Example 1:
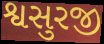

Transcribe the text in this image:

શ્વસુરજી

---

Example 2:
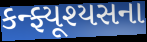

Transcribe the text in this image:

કન્ફ્યૂશ્યસના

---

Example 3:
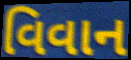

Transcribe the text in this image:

વિવાન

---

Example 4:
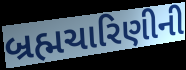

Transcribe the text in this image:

બ્રહ્મચારિણીની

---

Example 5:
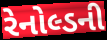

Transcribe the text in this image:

રેનોલ્ડની